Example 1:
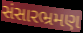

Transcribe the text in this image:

સંસારભ્રમણ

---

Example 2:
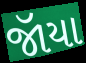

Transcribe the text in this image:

જૉયા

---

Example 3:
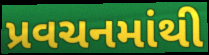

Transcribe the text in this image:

પ્રવચનમાંથી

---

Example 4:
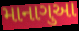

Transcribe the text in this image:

માનાગુઆ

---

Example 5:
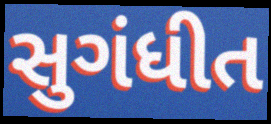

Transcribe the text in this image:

સુગંધીત